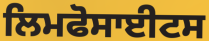
ਲਿਮਫੋਸਾਈਟਸ